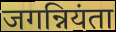
जगन्नियंता